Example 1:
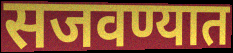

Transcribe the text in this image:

सजवण्यात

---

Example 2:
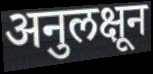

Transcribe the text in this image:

अनुलक्षून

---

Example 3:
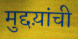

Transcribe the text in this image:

मुद्दय़ांची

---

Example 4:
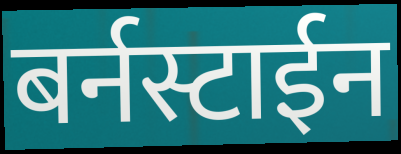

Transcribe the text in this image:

बर्नस्टाईन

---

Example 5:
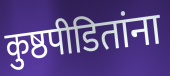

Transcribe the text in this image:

कुष्ठपीडितांना